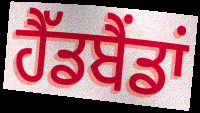
ਹੈੱਡਬੈਂਡਾਂ